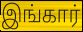
இங்கார்